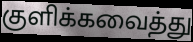
குளிக்கவைத்து